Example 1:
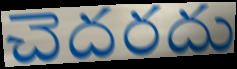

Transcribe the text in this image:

చెదరదు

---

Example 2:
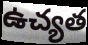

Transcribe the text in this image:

ఉచ్యత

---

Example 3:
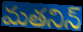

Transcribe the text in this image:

మతనిన్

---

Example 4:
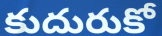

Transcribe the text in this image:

కుదురుకో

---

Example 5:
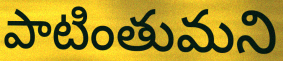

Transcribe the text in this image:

పాటింతుమని